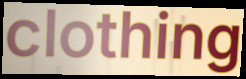
clothing